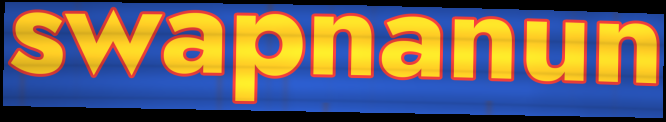
swapnanun